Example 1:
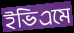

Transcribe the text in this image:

ইভিএমে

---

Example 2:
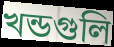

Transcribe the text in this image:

খন্ডগুলি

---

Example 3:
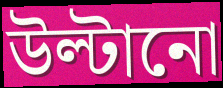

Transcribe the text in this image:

উল্টানো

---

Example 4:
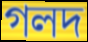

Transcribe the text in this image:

গলদ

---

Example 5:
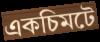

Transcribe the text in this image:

একচিমটে